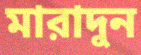
মারাদুন